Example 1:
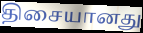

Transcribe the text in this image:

திசையானது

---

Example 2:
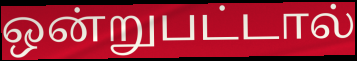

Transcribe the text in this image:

ஒன்றுபட்டால்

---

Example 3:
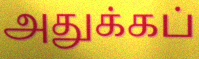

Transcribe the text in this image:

அதுக்கப்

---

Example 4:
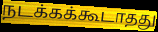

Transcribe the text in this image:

நடக்கக்கூடாதது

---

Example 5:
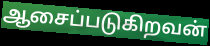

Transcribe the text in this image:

ஆசைப்படுகிறவன்